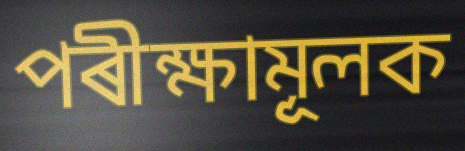
পৰীক্ষামূলক